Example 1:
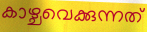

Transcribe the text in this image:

കാഴ്ചവെക്കുന്നത്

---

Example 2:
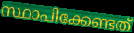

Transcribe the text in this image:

സ്ഥാപിക്കേണ്ടത്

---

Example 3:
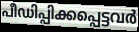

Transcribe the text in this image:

പീഡിപ്പിക്കപ്പെട്ടവർ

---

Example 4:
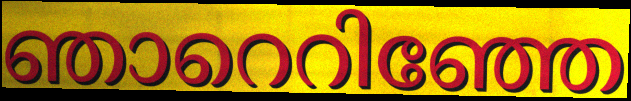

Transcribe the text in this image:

ഞാറെറിഞ്ഞേ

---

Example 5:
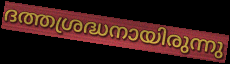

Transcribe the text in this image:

ദത്തശ്രദ്ധനായിരുന്നു